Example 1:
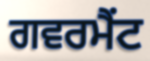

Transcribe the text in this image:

ਗਵਰਮੈਂਟ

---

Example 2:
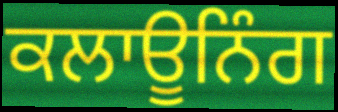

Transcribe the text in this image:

ਕਲਾਊਨਿੰਗ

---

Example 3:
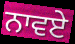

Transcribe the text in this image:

ਨਾਵਏ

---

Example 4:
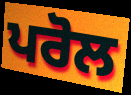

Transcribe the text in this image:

ਪਰੋਲ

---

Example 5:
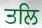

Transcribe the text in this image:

ਤਲਿ